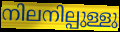
നിലനില്പുള്ളു